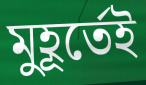
মুহূর্তেই